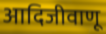
आदिजीवाणू